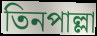
তিনপাল্লা